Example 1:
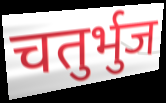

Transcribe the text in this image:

चतुर्भुज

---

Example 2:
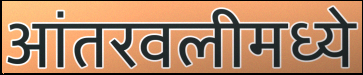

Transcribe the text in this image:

आंतरवलीमध्ये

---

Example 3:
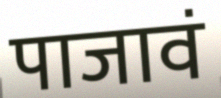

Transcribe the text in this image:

पाजावं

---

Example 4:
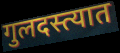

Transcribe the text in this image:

गुलदस्त्यात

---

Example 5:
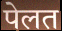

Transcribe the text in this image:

पेलत